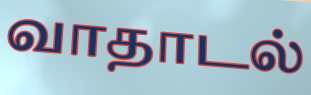
வாதாடல்